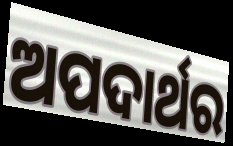
ଅପଦାର୍ଥର